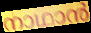
നാഥാൻ